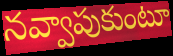
నవ్వాపుకుంటూ